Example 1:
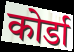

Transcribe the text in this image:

कोर्डा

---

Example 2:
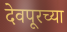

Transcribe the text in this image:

देवपूरच्या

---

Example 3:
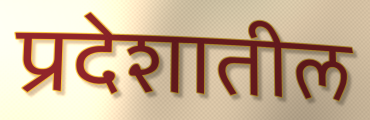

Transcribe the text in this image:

प्रदेशातील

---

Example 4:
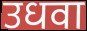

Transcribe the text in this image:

उधवा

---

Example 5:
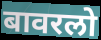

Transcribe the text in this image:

बावरलो